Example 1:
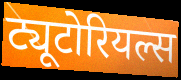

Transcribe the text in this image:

ट्यूटोरियल्स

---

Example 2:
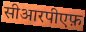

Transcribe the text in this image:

सीआरपीएफ़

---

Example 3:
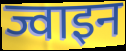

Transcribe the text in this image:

ज्‍वाइन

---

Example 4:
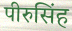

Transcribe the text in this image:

पीरुसिंह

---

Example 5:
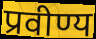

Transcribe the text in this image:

प्रवीण्य